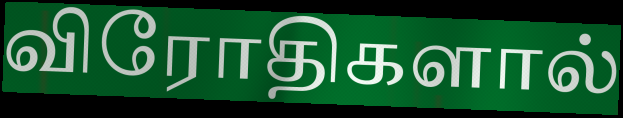
விரோதிகளால்